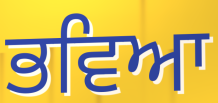
ਭਵਿਆ